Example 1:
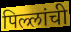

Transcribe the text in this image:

पिल्लांची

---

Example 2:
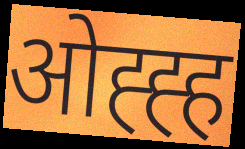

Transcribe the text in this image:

ओह्ह्ह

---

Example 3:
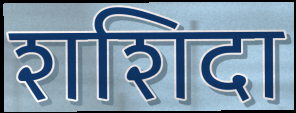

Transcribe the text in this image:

शशिदा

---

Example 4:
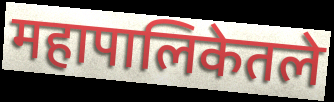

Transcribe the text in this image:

महापालिकेतले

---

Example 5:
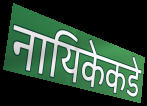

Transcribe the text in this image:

नायिकेकडे